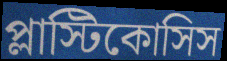
প্লাস্টিকোসিস